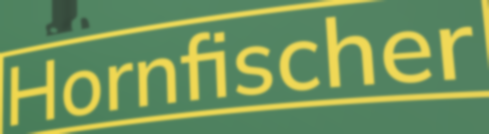
Hornfischer